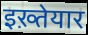
इख़्तेयार